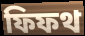
ফিফথ